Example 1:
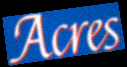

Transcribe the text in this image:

Acres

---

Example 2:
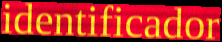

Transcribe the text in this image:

identificador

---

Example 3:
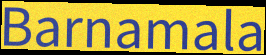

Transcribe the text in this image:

Barnamala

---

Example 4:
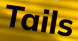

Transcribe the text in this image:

Tails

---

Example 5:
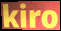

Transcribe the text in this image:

kiro